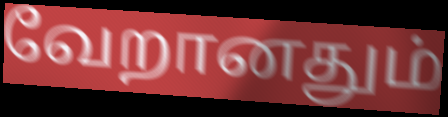
வேறானதும்